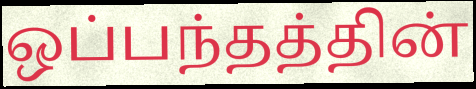
ஒப்பந்தத்தின்